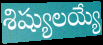
శిష్యులయ్యే